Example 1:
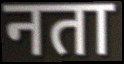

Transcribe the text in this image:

नता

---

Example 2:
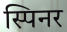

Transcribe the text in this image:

स्पिनर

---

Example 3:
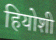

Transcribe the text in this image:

हियोशी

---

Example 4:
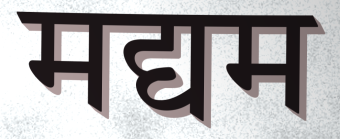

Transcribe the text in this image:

मद्यम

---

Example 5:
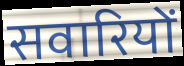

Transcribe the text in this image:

सवारियों